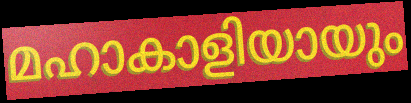
മഹാകാളിയായും